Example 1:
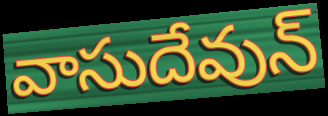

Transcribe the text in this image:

వాసుదేవున్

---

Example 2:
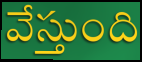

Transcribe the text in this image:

వేస్తుంది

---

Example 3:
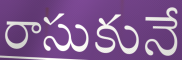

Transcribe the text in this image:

రాసుకునే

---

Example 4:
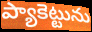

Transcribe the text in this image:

ప్యాకెట్టును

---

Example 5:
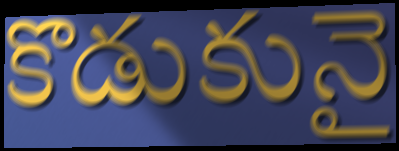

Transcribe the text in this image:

కొడుకునై